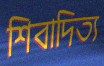
শিবাদিত্য